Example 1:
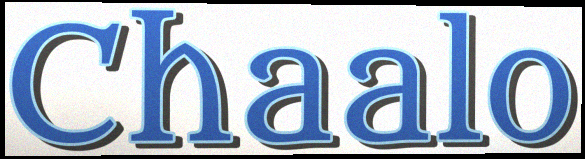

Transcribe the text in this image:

Chaalo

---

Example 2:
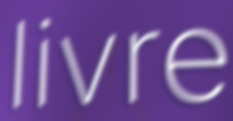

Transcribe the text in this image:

livre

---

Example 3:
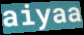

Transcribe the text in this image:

aiyaa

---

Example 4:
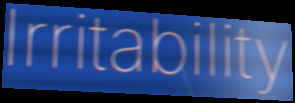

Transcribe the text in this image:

Irritability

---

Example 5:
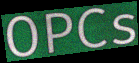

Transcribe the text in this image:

OPCs